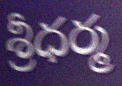
శ్రీధర్మ